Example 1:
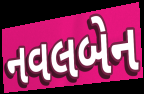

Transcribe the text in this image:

નવલબેન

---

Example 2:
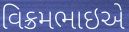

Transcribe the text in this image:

વિક્રમભાઇએ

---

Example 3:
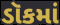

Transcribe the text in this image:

ડૉકમાં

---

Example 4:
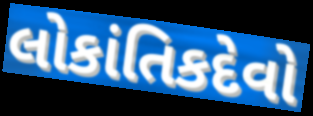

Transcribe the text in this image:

લોકાંતિકદેવો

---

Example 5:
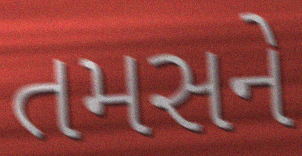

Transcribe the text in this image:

તમસને